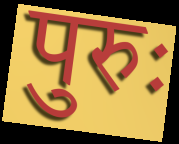
पुरुः